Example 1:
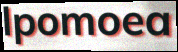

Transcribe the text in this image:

Ipomoea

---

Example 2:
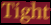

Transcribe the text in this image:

Tight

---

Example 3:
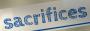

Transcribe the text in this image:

sacrifices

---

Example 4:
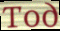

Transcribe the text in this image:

Tod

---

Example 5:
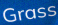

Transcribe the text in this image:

Grass